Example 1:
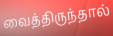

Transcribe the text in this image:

வைத்திருந்தால்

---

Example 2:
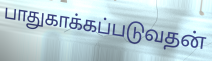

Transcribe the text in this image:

பாதுகாக்கப்படுவதன்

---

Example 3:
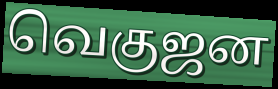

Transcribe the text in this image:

வெகுஜன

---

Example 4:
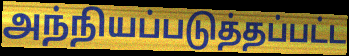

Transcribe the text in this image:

அந்நியப்படுத்தப்பட்ட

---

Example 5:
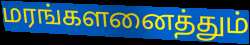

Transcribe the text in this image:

மரங்களனைத்தும்